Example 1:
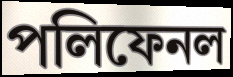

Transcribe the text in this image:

পলিফেনল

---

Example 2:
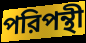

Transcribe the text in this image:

পরিপন্থী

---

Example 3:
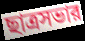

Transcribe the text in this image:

ছাত্রসভার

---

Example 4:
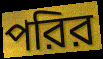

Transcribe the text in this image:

পরির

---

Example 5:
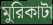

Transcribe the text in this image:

মুরিকাটা